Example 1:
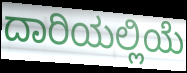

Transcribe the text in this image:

ದಾರಿಯಲ್ಲಿಯೆ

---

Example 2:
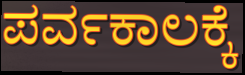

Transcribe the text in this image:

ಪರ್ವಕಾಲಕ್ಕೆ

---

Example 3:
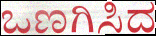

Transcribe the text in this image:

ಒಣಗಿಸಿದ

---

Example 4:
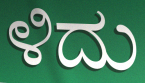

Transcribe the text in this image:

ಳಿದು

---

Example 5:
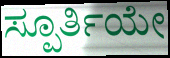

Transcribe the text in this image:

ಸ್ಪೂರ್ತಿಯೇ